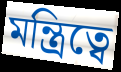
মন্ত্রিত্বে